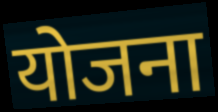
योजना